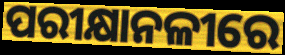
ପରୀକ୍ଷାନଳୀରେ